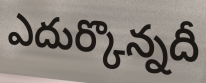
ఎదుర్కొన్నదీ